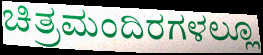
ಚಿತ್ರಮಂದಿರಗಳಲ್ಲೂ